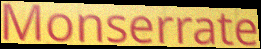
Monserrate